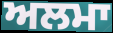
ਅਲਮਾ